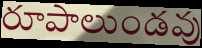
రూపాలుండవు